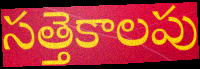
సత్తెకాలపు